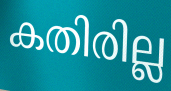
കതിരില്ല